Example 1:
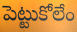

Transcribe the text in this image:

పెట్టుకోలేం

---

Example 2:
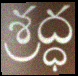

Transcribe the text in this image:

శ్రద్ధ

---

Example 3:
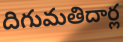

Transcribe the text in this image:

దిగుమతిదార్ల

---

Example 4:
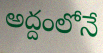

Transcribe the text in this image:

అద్దంలోనే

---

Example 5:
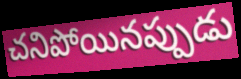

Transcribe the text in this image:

చనిపోయినప్పుడు